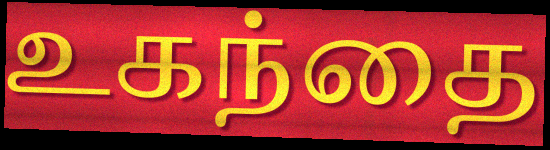
உகந்தை